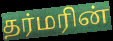
தர்மரின்